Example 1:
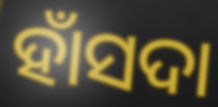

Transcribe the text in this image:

ହାଁସଦା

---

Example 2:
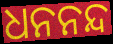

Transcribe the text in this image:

ଧନନନ୍ଦ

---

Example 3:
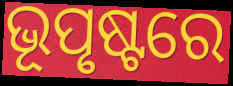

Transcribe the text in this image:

ଭୂପୃଷ୍ଟରେ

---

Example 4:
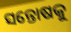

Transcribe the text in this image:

ସନ୍ତୋଷକୁ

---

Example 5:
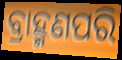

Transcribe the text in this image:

ବ୍ରାହ୍ମଣପରି